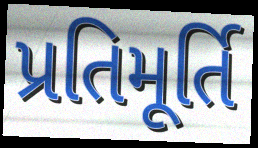
પ્રતિમૂર્તિ